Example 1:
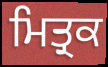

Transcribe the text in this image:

ਮਿਤ੍ਰਕ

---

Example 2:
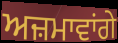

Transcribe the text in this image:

ਅਜ਼ਮਾਵਾਂਗੇ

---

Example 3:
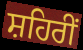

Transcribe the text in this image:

ਸ਼ਹਿਰੀਂ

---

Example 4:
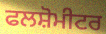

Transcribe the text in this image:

ਫਲਸ਼ੋਮੀਟਰ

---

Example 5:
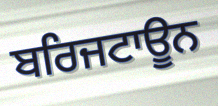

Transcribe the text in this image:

ਬਰਿਜਟਾਊਨ